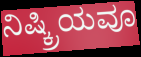
ನಿಷ್ಕ್ರಿಯವೂ